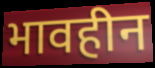
भावहीन